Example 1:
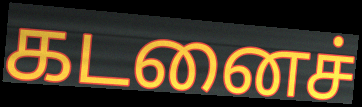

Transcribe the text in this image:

கடனைச்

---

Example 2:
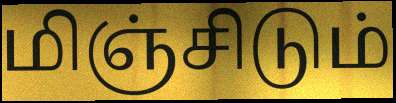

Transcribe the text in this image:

மிஞ்சிடும்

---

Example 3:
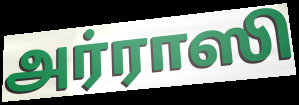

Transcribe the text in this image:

அர்ராஸி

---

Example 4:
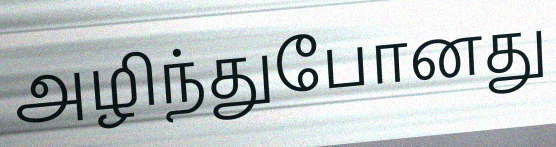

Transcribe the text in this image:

அழிந்துபோனது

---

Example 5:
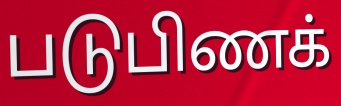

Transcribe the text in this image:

படுபிணக்